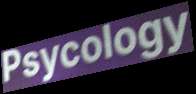
Psycology